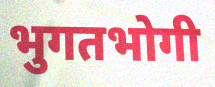
भुगतभोगी